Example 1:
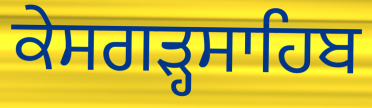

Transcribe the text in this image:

ਕੇਸਗੜ੍ਹਸਾਹਿਬ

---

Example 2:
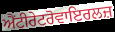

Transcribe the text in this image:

ਐਂਟੀਰੇਟਰੋਵਾਇਰਲਜ਼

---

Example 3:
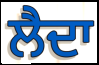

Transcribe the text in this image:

ਲੈਦਾ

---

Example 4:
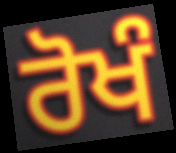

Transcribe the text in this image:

ਰੋਖੰ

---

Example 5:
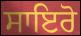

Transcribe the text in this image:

ਸਾਇਰੋ